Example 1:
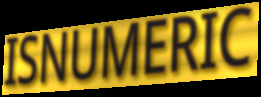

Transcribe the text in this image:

ISNUMERIC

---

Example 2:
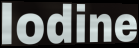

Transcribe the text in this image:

lodine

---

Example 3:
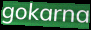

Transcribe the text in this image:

gokarna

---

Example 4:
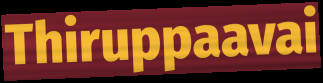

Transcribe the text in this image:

Thiruppaavai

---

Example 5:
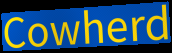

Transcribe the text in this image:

Cowherd